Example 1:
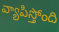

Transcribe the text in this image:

వ్యాపిస్తోంది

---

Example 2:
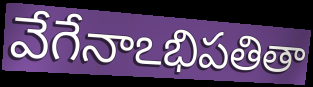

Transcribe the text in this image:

వేగేనాఽభిపతితా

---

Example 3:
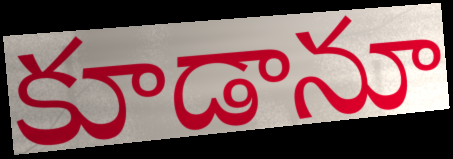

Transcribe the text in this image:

కూడానూ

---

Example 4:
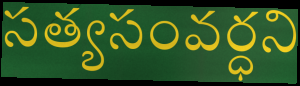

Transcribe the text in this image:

సత్యసంవర్ధని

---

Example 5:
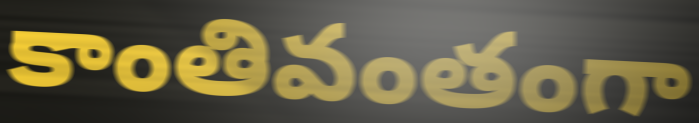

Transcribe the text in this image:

కాంతివంతంగా